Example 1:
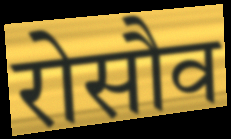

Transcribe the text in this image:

रोसौव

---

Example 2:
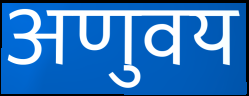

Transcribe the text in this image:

अणुवय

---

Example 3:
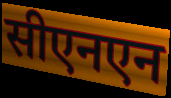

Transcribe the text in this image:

सीएनएन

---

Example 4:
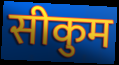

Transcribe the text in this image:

सीकुम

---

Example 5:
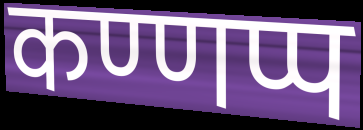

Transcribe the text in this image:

कण्णप्प